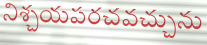
నిశ్చయపరచవచ్చును